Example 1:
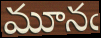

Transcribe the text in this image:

మూనఁ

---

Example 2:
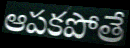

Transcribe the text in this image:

ఆపకపోతే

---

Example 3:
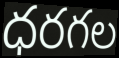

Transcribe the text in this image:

ధరగల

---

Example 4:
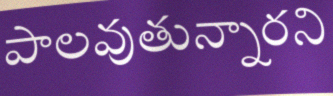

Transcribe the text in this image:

పాలవుతున్నారని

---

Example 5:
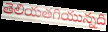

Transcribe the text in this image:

తెలియతగియున్నది